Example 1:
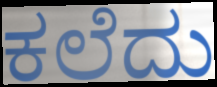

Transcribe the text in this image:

ಕಲೆದು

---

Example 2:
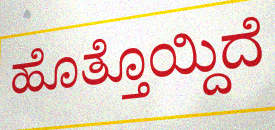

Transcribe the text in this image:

ಹೊತ್ತೊಯ್ದಿದೆ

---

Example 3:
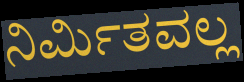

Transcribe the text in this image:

ನಿರ್ಮಿತವಲ್ಲ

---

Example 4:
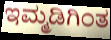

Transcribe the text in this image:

ಇಮ್ಮಡಿಗಿಂತ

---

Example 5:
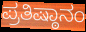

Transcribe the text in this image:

ಪ್ರತಿಷ್ಠಾನಂ